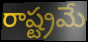
రాష్ట్రమే